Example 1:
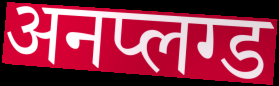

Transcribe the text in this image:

अनप्लग्ड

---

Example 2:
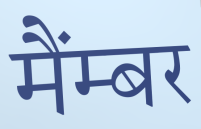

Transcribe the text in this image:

मैंम्बर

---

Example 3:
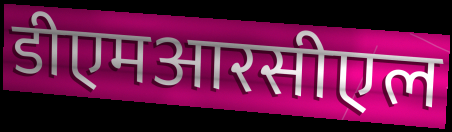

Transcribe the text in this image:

डीएमआरसीएल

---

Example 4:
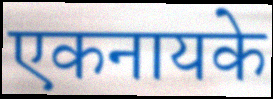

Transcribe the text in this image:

एकनायके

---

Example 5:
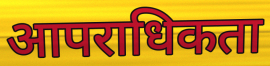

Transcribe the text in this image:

आपराधिकता